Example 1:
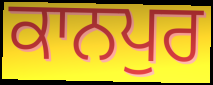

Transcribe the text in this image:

ਕਾਨਪੁਰ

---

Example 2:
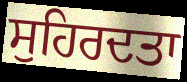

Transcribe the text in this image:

ਸੁਹਿਰਦਤਾ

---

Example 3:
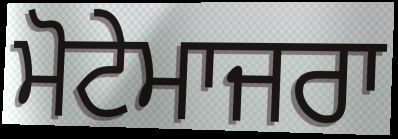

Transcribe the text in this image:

ਮੋਟੇਮਾਜਰਾ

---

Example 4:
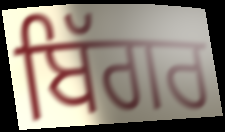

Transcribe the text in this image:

ਬਿੱਗਰ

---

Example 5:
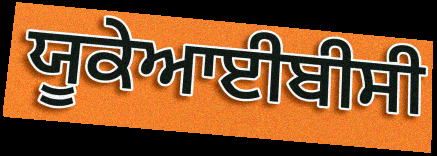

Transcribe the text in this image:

ਯੂਕੇਆਈਬੀਸੀ